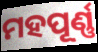
ମହପୂର୍ଣ୍ଣ